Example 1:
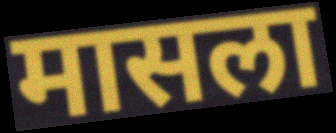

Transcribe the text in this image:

मासला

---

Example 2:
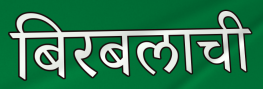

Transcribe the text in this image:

बिरबलाची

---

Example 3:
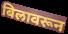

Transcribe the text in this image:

बिलावरून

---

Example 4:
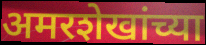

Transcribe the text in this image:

अमरशेखांच्या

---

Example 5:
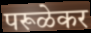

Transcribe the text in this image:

परूळेकर